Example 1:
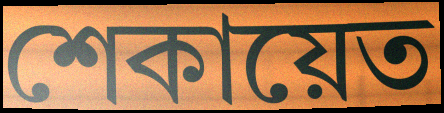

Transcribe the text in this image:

শেকায়েত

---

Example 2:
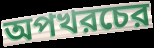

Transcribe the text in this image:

অপখরচের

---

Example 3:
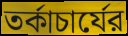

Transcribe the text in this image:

তর্কাচার্যের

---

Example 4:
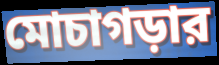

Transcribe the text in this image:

মোচাগড়ার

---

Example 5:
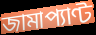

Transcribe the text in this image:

জামাপ্যাণ্ট